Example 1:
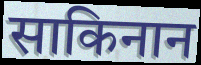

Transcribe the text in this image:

साकिनान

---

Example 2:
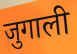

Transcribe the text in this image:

जुगाली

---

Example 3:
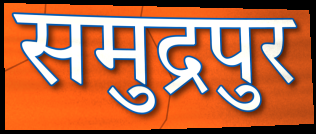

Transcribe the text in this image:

समुद्रपुर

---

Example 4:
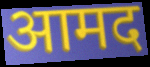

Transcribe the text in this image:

आमद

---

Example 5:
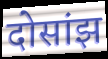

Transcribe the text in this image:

दोसांझ